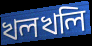
খলখলি